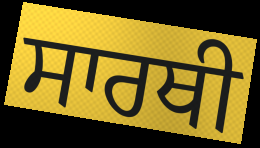
ਸਾਰਥੀ